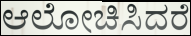
ಆಲೋಚಿಸಿದರೆ